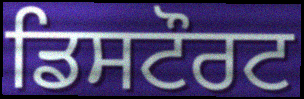
ਡਿਸਟੌਰਟ